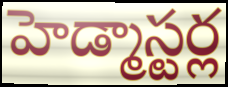
హెడ్మాస్టర్ల